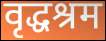
वृद्धश्रम